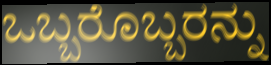
ಒಬ್ಬರೊಬ್ಬರನ್ನು